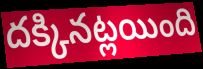
దక్కినట్లయింది